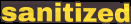
sanitized